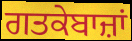
ਗਤਕੇਬਾਜ਼ਾਂ